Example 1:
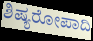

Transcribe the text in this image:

ಶಿಷ್ಯರೋಪಾದಿ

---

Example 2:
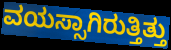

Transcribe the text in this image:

ವಯಸ್ಸಾಗಿರುತ್ತಿತ್ತು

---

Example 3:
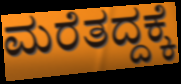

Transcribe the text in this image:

ಮರೆತದ್ದಕ್ಕೆ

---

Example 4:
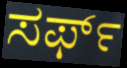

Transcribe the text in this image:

ಸರ್ಫ್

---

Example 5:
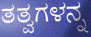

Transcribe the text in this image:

ತತ್ವಗಳನ್ನ